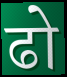
ढो